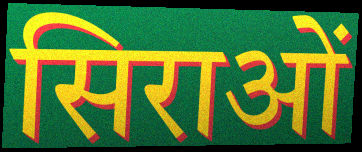
सिराओं